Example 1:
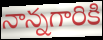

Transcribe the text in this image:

నాన్నగారికి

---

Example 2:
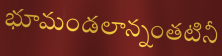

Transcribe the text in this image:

భూమండలాన్నంతటినీ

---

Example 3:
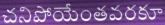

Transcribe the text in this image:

చనిపోయేంతవరకూ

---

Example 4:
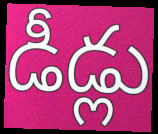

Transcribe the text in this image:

డీడ్లు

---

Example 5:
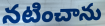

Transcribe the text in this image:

నటించాను